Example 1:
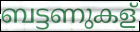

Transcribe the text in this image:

ബട്ടണുകള്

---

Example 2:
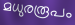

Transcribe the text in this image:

മധുരരൂപം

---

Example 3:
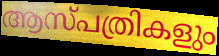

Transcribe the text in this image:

ആസ്പത്രികളും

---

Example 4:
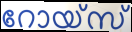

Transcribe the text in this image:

റോയ്സ്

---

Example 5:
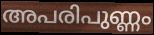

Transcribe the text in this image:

അപരിപുണ്ണം